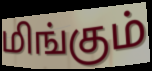
மிங்கும்